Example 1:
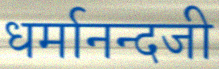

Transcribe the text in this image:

धर्मानन्दजी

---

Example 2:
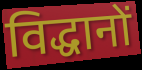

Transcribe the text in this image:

विद्धानों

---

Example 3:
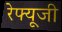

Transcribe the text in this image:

रेफ्यूजी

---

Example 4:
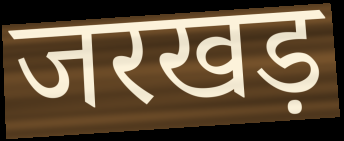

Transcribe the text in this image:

जरखड़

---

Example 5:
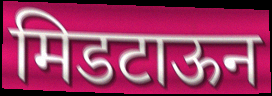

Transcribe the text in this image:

मिडटाऊन